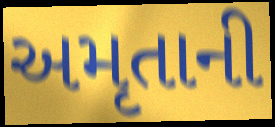
અમૃતાની